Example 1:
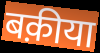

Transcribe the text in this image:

बक़ीया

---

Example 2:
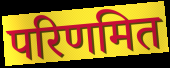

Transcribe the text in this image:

परिणमित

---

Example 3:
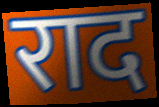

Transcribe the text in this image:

राद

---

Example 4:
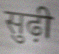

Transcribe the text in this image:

सुढ़ी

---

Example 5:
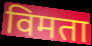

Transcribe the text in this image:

विमता